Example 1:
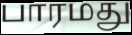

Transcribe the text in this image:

பாரமது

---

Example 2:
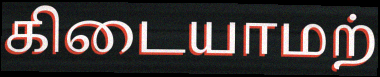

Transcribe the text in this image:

கிடையாமற்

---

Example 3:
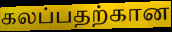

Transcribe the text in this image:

கலப்பதற்கான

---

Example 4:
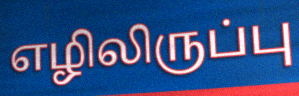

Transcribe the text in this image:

எழிலிருப்பு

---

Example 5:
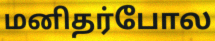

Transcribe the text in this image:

மனிதர்போல